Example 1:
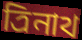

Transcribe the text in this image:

ত্রিনাথ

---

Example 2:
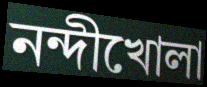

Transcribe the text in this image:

নন্দীখোলা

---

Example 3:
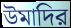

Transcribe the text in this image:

উমাদির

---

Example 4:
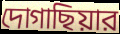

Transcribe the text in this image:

দোগাছিয়ার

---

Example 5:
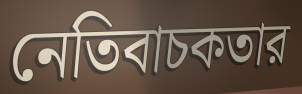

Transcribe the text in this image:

নেতিবাচকতার